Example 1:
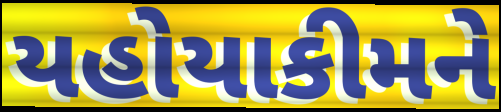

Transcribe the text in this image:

યહોયાકીમને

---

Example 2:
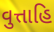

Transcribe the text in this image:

વુત્તાહિ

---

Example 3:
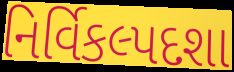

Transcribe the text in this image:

નિર્વિકલ્પદશા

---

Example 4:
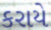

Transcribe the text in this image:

કરાયે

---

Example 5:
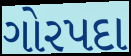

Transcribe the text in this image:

ગોરપદા